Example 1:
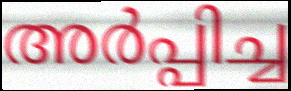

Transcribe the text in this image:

അർപ്പിച്ച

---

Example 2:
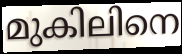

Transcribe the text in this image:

മുകിലിനെ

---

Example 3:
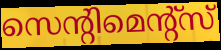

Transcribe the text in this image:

സെന്റിമെന്റ്സ്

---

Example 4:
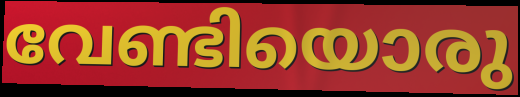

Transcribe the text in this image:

വേണ്ടിയൊരു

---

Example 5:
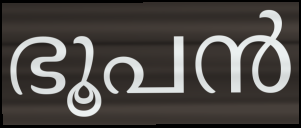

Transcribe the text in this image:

ഭൂപൻ